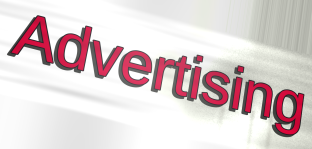
Advertising